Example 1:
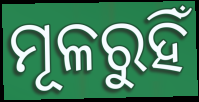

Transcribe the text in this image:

ମୂଳରୁହିଁ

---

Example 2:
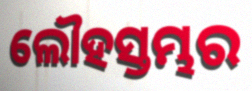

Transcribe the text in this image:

ଲୌହସ୍ତମ୍ଭର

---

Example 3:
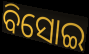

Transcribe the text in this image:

ବିସୋଇ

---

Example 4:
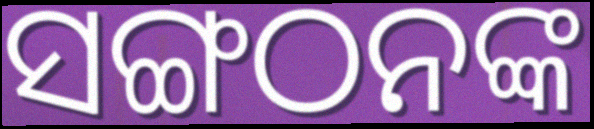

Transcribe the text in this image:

ସଙ୍ଗଠନଙ୍କ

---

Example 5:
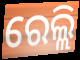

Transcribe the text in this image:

ରେଲ୍ଲି